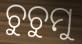
ଚୁଚୁମୁ